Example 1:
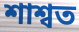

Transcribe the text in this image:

শাশ্বত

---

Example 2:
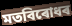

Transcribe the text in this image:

মতবিৰোধৰ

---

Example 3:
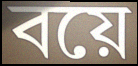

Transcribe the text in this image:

বয়ে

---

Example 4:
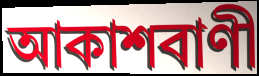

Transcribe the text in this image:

আকাশবাণী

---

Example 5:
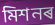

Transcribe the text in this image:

মিশনৰ